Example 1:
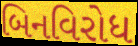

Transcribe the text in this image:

બિનવિરોધ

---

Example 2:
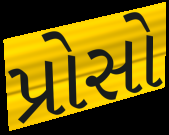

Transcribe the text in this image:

પ્રોસો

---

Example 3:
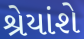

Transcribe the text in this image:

શ્રેયાંશે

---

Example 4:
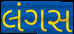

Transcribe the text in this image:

લંગસ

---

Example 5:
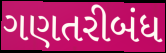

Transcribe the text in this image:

ગણતરીબંધ